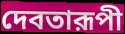
দেবতারূপী